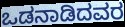
ಒಡನಾಡಿದವರ